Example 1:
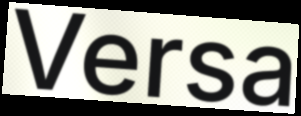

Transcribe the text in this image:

Versa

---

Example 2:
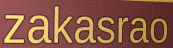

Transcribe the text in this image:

zakasrao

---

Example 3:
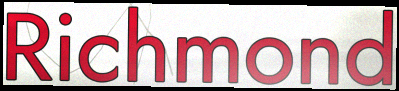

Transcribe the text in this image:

Richmond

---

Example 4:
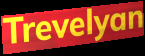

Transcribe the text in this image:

Trevelyan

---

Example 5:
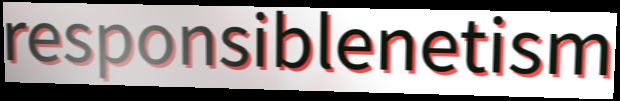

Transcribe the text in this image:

responsiblenetism